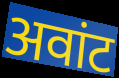
अवांट